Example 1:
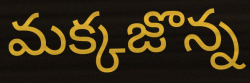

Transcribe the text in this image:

మక్కజొన్న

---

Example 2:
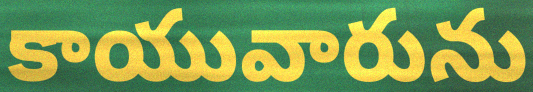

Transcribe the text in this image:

కాయువారును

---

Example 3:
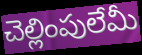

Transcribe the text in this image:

చెల్లింపులేమీ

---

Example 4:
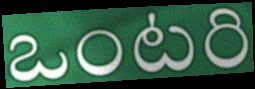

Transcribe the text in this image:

ఒంటరి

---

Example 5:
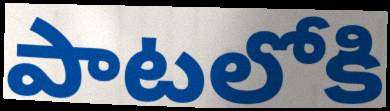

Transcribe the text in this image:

పాటలోకి